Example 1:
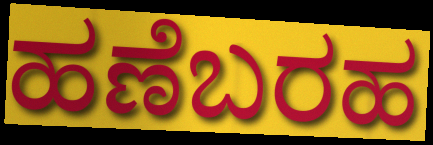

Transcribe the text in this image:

ಹಣೆಬರಹ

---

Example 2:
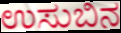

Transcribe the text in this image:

ಉಸುಬಿನ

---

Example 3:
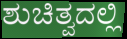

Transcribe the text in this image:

ಶುಚಿತ್ವದಲ್ಲಿ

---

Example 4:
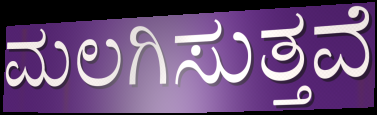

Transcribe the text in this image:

ಮಲಗಿಸುತ್ತವೆ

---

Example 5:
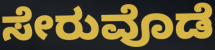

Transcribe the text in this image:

ಸೇರುವೊಡೆ